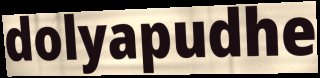
dolyapudhe